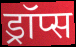
ड्रॉप्स